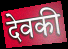
देवकी